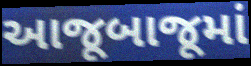
આજૂબાજૂમાં